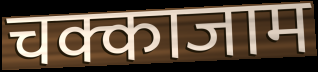
चक्काजाम